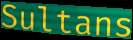
Sultans